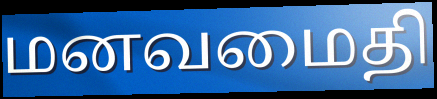
மனவமைதி